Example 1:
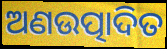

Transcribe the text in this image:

ଅଣଉତ୍ପାଦିତ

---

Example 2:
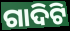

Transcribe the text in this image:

ଗାଦିଟି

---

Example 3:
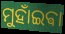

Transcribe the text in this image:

ମୁହାଁଇଵା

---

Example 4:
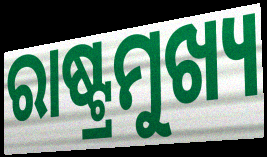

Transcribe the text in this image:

ରାଷ୍ଟ୍ରମୁଖ୍ୟ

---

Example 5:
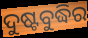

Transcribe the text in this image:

ଦୁଷ୍ଟବୁଦ୍ଧିର